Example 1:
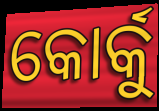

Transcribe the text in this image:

କୋର୍କୁ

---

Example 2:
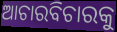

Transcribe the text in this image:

ଆଚାରବିଚାରକୁ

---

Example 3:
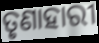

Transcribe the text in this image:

ତୃଣାହାରୀ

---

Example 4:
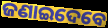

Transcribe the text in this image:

ଜଣାଇଦେବେ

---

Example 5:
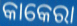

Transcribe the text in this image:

କାକେରା